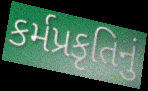
કર્મપ્રકૃતિનું